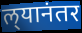
ल्यानंतर